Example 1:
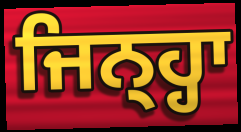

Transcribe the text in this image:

ਜਿਨ੍ਹ੍ਹਾ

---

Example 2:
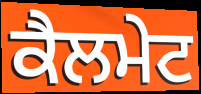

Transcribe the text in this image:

ਕੈਲਮੇਟ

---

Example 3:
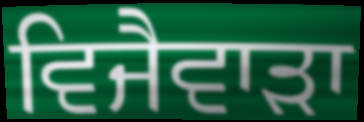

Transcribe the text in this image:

ਵਿਜੈਵਾੜਾ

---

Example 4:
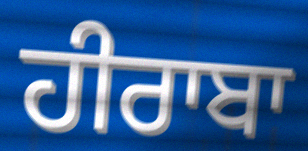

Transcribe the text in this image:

ਹੀਰਾਬਾ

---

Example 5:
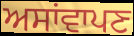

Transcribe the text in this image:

ਅਸਾਂਵਾਪਣ